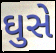
ઘુસે